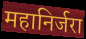
महानिर्जरा